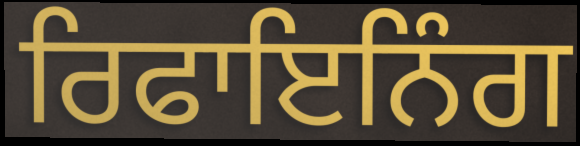
ਰਿਫਾਇਨਿੰਗ